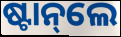
ଷ୍ଟାନ୍‌ଲେ